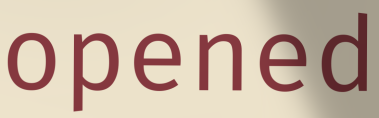
opened